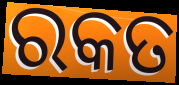
ରକତ